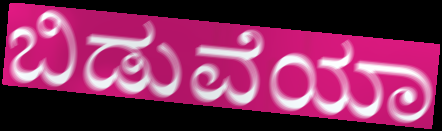
ಬಿಡುವೆಯಾ